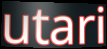
utari